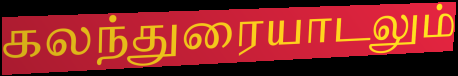
கலந்துரையாடலும்